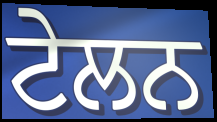
ਟੇਲਨ